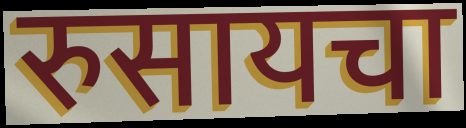
रुसायचा